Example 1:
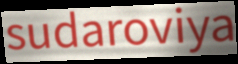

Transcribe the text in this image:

sudaroviya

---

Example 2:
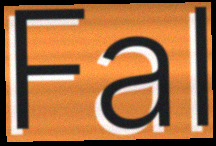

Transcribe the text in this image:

Fal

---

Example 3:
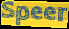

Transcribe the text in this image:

Speer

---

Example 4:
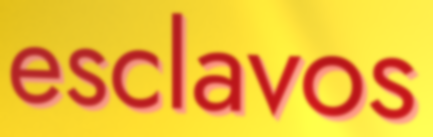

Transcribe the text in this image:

esclavos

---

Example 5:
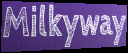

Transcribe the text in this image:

Milkyway